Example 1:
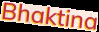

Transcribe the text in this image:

Bhaktina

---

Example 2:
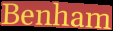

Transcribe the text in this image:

Benham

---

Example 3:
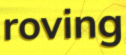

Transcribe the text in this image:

roving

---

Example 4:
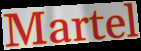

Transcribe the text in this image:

Martel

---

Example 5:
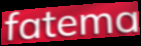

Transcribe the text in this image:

fatema